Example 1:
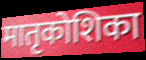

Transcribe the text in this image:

मातृकोशिका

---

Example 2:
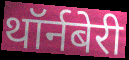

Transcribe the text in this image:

थॉर्नबेरी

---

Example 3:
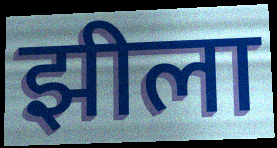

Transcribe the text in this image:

झीला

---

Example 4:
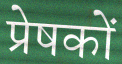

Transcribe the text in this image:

प्रेषकों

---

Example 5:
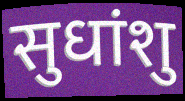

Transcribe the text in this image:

सुधांशु